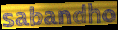
sabandho